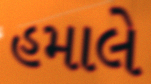
હમાલે